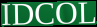
IDCOL